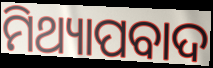
ମିଥ୍ୟାପବାଦ